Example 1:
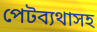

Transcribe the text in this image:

পেটব্যথাসহ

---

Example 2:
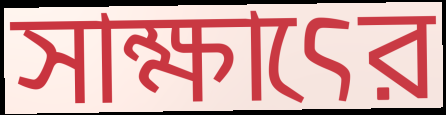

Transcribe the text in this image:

সাক্ষাৎের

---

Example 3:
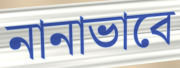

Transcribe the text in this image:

নানাভাবে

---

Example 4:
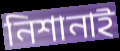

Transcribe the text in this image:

নিশানাই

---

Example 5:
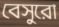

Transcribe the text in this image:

বেসুরো